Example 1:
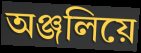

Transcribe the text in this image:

অঞ্জলিয়ে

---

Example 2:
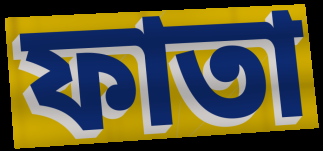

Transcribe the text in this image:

ফাতা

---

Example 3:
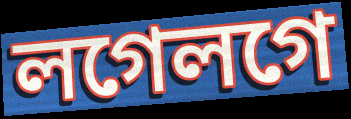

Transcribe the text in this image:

লগেলগে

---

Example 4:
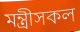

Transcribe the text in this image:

মন্ত্ৰীসকল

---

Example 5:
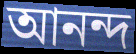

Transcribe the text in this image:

আনন্দ